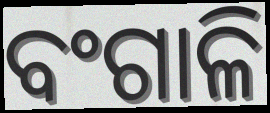
ବଂଗାଳି